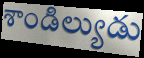
శాండిల్యుడు